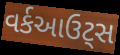
વર્કઆઉટ્સ